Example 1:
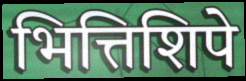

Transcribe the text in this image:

भित्तिशिपे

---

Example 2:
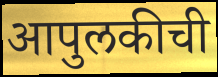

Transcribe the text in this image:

आपुलकीची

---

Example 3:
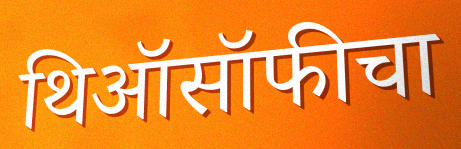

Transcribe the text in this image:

थिऑसॉफीचा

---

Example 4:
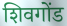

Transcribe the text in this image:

शिवगोंड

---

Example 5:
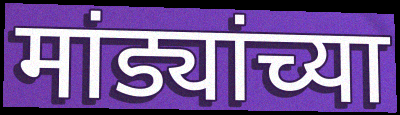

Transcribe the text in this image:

मांड्यांच्या